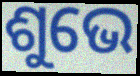
ଶୁଭେ